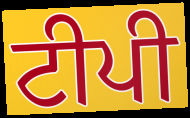
ਟੀਪੀ